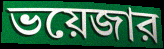
ভয়েজার